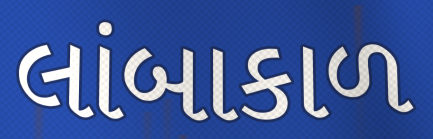
લાંબાકાળ